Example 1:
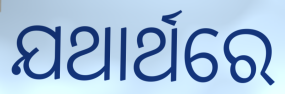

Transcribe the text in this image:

ଯଥାର୍ଥରେ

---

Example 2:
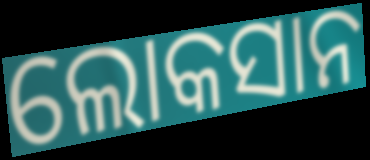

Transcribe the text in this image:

ଲୋକସାନ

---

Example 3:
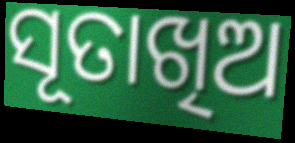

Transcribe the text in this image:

ସୂତାଖିଅ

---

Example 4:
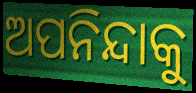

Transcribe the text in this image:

ଅପନିନ୍ଦାକୁ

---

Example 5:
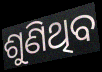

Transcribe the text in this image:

ଶୁଣିଥିବ